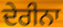
ਦੇਰੀਨਾ